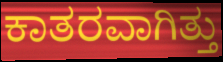
ಕಾತರವಾಗಿತ್ತು